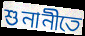
শুনানীতে